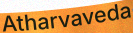
Atharvaveda